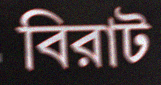
বিরাট